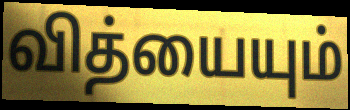
வித்யையும்